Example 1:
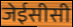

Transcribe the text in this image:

जेईसीसी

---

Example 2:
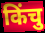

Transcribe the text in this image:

किंचु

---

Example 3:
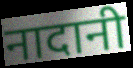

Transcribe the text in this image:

नादानी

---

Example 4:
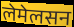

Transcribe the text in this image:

लेमेलसन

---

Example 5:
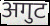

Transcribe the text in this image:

अगुट